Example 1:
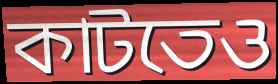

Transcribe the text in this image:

কাটতেও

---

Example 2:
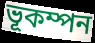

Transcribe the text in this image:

ভূকম্পন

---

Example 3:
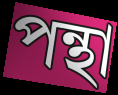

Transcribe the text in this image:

পন্থা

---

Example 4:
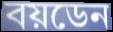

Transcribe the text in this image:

বয়ডেন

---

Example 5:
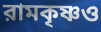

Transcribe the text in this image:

রামকৃষ্ণও